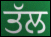
ਤੱਲ